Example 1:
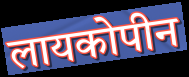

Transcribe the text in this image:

लायकोपीन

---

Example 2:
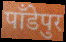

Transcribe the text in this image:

पाँडेपुर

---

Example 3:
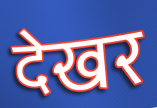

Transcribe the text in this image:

देखर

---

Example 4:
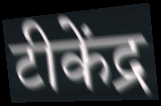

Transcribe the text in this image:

टीकेंद्र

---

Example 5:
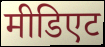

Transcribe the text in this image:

मीडिएट